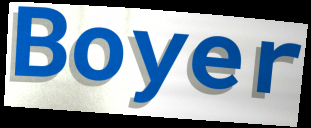
Boyer